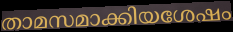
താമസമാക്കിയശേഷം